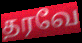
தரவே